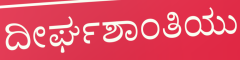
ದೀರ್ಘಶಾಂತಿಯು